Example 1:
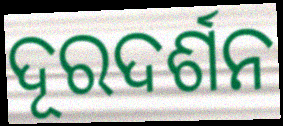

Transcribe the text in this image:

ଦୂରଦର୍ଶନ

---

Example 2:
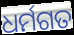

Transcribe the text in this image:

ଧର୍ମଗତ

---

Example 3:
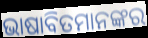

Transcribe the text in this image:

ଭାଷାବିତମାନଙ୍କର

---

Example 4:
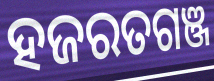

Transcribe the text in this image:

ହଜରତଗଞ୍ଜ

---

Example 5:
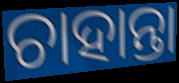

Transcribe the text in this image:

ଚାହାନ୍ତା